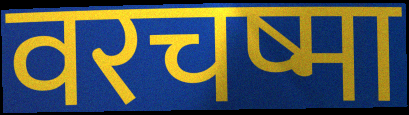
वरचष्मा